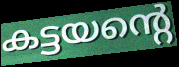
കട്ടയന്റെ